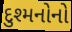
દુશ્મનોનો